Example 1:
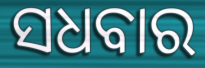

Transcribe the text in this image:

ସଧବାର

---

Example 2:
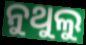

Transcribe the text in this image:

ନୁଥୁଲୁ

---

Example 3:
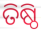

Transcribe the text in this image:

ତିଷ୍ଠି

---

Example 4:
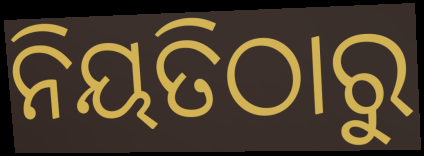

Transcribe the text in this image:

ନିୟତିଠାରୁ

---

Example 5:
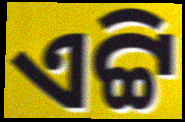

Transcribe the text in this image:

ଏଟ୍ଟି